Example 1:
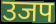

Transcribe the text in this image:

उजप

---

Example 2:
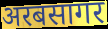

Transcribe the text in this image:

अरबसागर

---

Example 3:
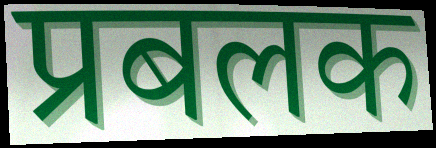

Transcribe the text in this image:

प्रबलक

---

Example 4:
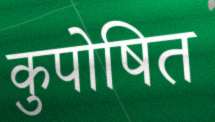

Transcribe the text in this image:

कुपोषित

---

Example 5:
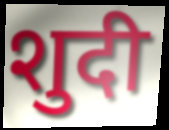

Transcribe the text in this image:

शुदी